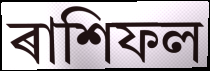
ৰাশিফল